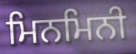
ਮਿਨਮਿਨੀ